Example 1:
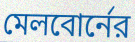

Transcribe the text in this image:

মেলবোর্নের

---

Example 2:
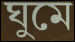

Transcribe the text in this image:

ঘুমে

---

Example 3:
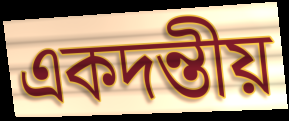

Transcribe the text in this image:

একদন্তীয়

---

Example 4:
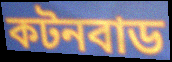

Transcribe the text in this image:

কটনবাড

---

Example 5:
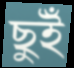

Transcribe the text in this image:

ছুইঁ